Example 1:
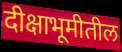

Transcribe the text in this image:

दीक्षाभूमीतील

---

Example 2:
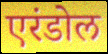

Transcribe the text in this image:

एरंडोल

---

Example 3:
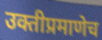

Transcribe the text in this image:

उक्तीप्रमाणेच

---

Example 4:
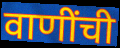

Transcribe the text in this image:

वाणींची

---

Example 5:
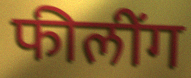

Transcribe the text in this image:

फीलींग